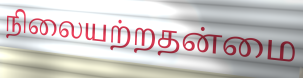
நிலையற்றதன்மை